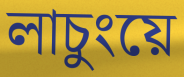
লাচুংয়ে